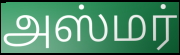
அஸ்மர்